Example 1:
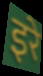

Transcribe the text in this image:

इरे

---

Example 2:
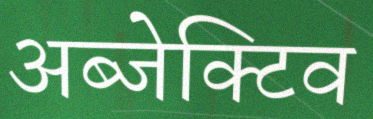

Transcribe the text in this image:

अब्जेक्टिव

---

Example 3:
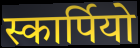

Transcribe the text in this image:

स्कार्पियो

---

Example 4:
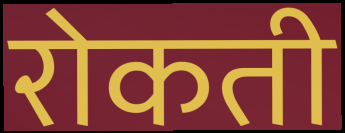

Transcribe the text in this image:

रोकती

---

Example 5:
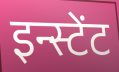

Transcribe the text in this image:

इन्स्टेंट